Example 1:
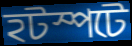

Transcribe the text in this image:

হটস্পটে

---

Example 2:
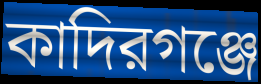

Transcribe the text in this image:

কাদিরগঞ্জে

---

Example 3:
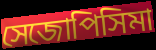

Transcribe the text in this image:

সেজোপিসিমা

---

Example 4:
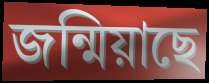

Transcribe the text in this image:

জন্মিয়াছে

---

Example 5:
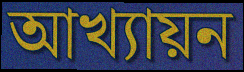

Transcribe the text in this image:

আখ্যায়ন